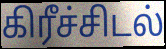
கிரீச்சிடல்